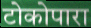
टोकोपारा